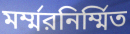
মর্ম্মরনির্ম্মিত